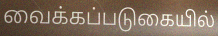
வைக்கப்படுகையில்